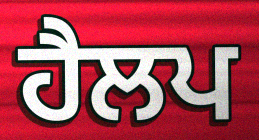
ਹੈਲਪ